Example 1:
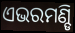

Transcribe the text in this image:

ଏଭରମଣ୍ଡି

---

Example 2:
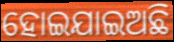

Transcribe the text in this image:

ହୋଇଯାଇଅଛି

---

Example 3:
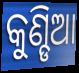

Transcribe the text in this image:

କୁଣ୍ଡିଆ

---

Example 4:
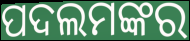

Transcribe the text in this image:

ପଦଲମଙ୍କର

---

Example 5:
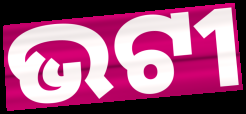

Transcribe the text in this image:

ଭଟୀ